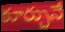
కూర్చునే